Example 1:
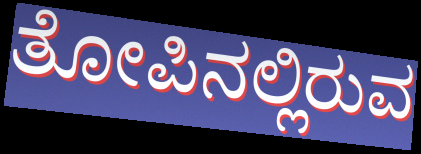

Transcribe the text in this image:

ತೋಪಿನಲ್ಲಿರುವ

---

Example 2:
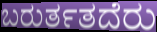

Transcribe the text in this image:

ಬರುರ್ತತದೆರು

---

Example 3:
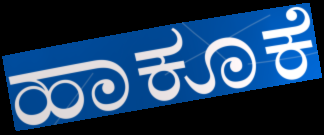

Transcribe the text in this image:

ಹಾಕೂಕೆ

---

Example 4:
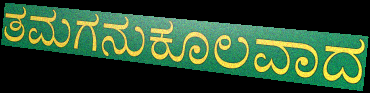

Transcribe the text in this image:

ತಮಗನುಕೂಲವಾದ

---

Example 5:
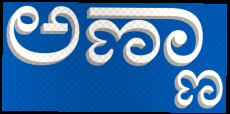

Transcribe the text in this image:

ಅಣ್ಣಾ